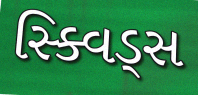
સ્ક્વિડ્સ